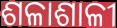
ଶଳାଶାଳୀ